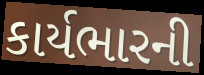
કાર્યભારની